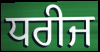
ਧਰੀਜ